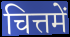
चित्तमें